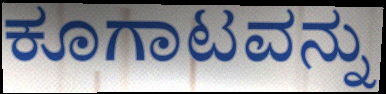
ಕೂಗಾಟವನ್ನು